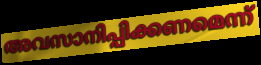
അവസാനിപ്പിക്കണമെന്ന്